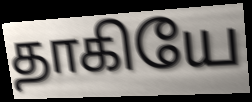
தாகியே